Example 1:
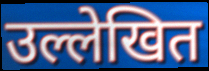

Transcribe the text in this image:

उल्लेखित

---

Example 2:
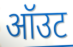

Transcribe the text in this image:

ऑउट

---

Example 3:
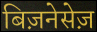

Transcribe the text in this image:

बिज़नेसेज़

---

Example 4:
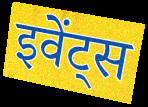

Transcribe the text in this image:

इवेंट्स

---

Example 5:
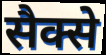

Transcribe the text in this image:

सैक्से